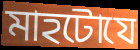
মাহটোযে